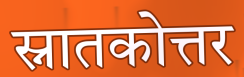
स्नातकोत्तर